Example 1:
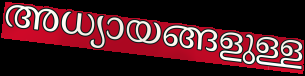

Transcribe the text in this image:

അധ്യായങ്ങളുള്ള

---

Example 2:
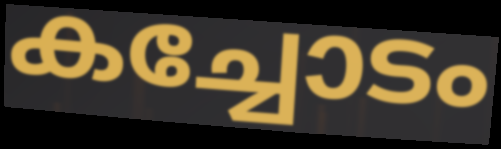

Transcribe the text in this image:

കച്ചോടം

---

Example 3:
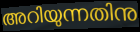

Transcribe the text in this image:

അറിയുന്നതിനു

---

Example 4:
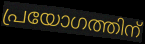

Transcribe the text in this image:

പ്രയോഗത്തിന്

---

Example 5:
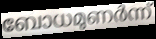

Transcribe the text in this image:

ബോധമുണർന്ന്